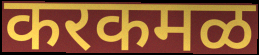
करकमळ